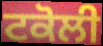
ਟਕੋਲੀ